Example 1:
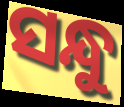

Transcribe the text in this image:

ସନ୍ଧୁ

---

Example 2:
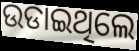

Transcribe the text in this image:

ଉଡାଇଥିଲେ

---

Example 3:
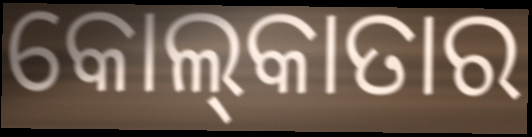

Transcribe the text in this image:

କୋଲ୍‌କାତାର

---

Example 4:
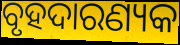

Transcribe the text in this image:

ବୃହଦାରଣ୍ୟକ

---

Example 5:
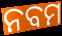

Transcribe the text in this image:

ନବମ